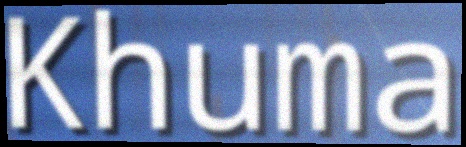
Khuma